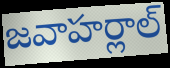
జవాహర్లాల్